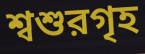
শ্বশুরগৃহ